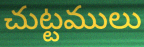
చుట్టములు